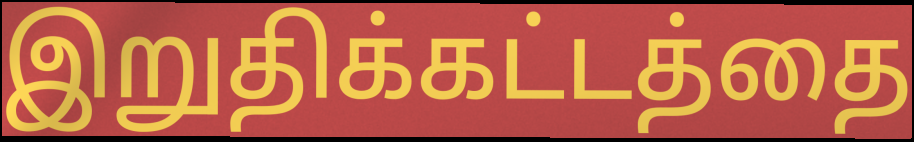
இறுதிக்கட்டத்தை